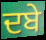
ਦਬੇ